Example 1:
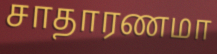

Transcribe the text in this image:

சாதாரணமா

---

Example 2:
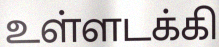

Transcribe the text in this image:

உள்ளடக்கி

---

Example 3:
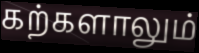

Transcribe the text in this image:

கற்களாலும்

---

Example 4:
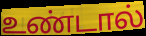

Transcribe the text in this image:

உண்டால்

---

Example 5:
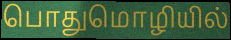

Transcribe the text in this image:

பொதுமொழியில்